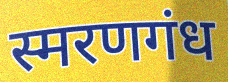
स्मरणगंध